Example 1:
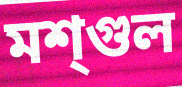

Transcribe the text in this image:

মশ্গুল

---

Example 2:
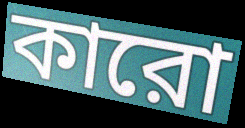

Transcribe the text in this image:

কারো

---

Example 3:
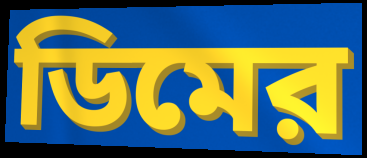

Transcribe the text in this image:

ডিমের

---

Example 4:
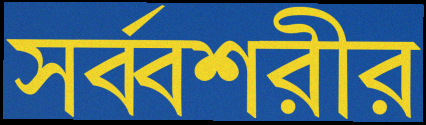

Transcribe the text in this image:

সর্ব্বশরীর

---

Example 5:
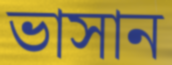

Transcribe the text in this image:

ভাসান